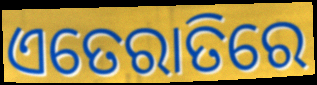
ଏତେରାତିରେ